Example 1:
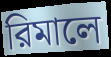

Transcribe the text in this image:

রিমালে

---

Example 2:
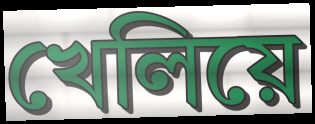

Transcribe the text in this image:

খেলিয়ে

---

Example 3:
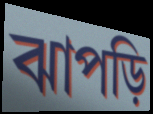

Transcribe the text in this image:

ঝাপড়ি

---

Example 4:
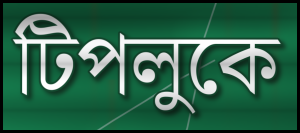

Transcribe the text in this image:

টিপলুকে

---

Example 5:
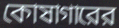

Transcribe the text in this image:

কোষাগারের